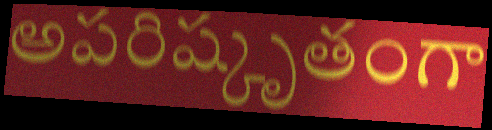
అపరిష్కృతంగా